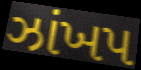
ઝાંખપ